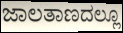
ಜಾಲತಾಣದಲ್ಲೂ